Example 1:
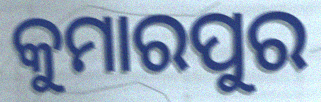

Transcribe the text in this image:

କୁମାରପୁର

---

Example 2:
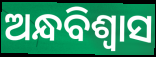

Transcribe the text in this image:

ଅନ୍ଧବିଶ୍ଵାସ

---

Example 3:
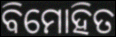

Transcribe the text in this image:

ବିମୋହିତ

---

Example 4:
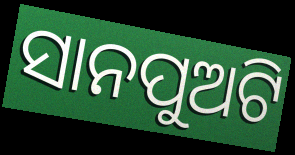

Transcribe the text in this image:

ସାନପୁଅଟି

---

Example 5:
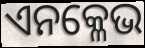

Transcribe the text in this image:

ଏନକ୍ଳେଭ